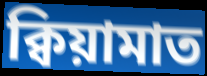
ক্বিয়ামাত